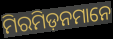
ମିରମିଡ଼ନମାନେ